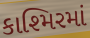
કાશ્મિરમાં